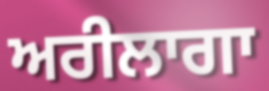
ਅਰੀਲਾਗਾ